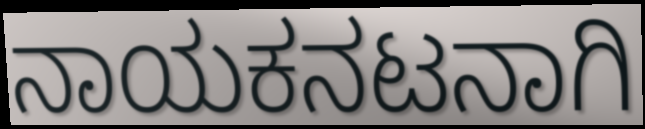
ನಾಯಕನಟನಾಗಿ